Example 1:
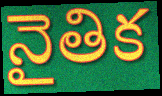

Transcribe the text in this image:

నైతిక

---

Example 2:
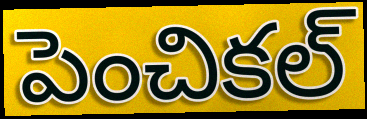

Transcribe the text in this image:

పెంచికల్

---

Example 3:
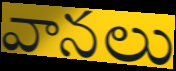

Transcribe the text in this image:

వానలు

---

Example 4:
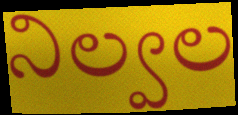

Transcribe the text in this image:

నిల్వల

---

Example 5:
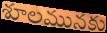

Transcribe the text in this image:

శూలమునకు